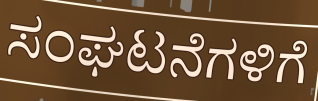
ಸಂಘಟನೆಗಳಿಗೆ